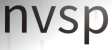
nvsp